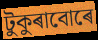
টুকুৰাবোৰে